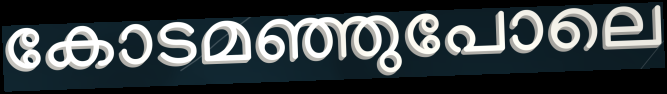
കോടമഞ്ഞുപോലെ